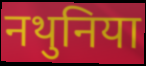
नथुनिया